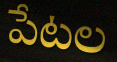
పేటల